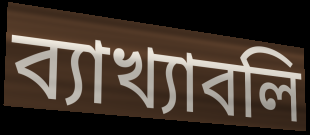
ব্যাখ্যাবলি